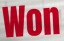
Won